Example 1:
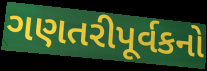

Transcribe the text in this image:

ગણતરીપૂર્વકનો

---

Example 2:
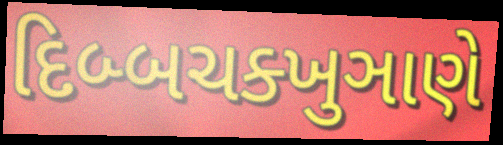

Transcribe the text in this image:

દિબ્બચક્ખુઞાણે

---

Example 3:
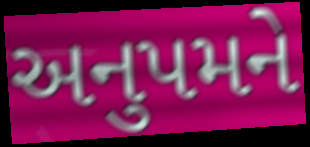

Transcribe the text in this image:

અનુપમને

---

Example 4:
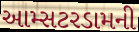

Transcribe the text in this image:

આમ્સટરડામની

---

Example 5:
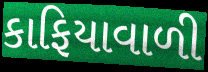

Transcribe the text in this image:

કાફિયાવાળી